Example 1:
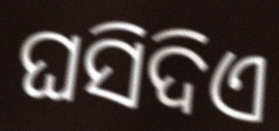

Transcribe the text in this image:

ଘସିଦିଏ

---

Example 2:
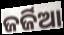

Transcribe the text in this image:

ଜର୍ଜିଆ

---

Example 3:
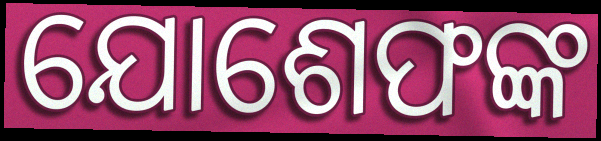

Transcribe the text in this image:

ଯୋଶେଫଙ୍କ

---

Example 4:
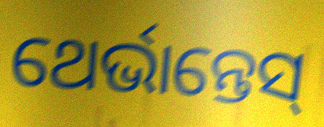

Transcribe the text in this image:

ଥେର୍ଭାନ୍ତେସ୍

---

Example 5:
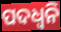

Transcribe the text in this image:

ପଦଧ୍ଵନି